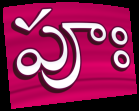
పూః